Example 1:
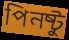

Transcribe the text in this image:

পিনষ্টু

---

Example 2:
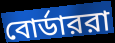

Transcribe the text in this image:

বোর্ডাররা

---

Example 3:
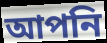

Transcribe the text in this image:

আপনি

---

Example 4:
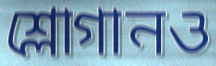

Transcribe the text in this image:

শ্লোগানও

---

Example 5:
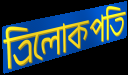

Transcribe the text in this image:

ত্রিলোকপতি